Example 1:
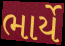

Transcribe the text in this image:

ભાર્યે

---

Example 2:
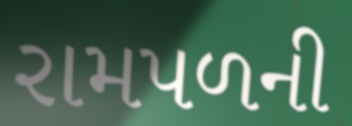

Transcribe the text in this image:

રામપળની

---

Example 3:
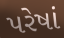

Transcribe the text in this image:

પરેષાં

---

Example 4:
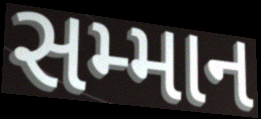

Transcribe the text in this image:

સમ્માન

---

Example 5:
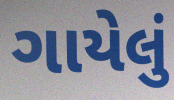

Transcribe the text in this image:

ગાયેલું